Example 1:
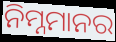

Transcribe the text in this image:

ନିମ୍ନମାନର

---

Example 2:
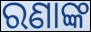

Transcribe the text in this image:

ରଣାଙ୍କ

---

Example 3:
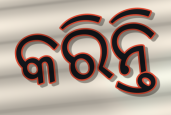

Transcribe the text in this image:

କରିନ୍ତି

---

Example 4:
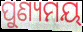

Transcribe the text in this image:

ପୁଣ୍ୟମୟ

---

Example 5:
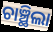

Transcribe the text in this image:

ଚାଞ୍ଛିଲା